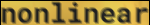
nonlinear